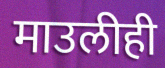
माउलीही